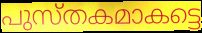
പുസ്തകമാകട്ടെ